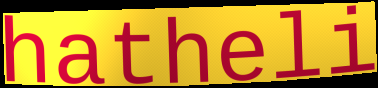
hatheli